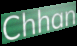
Chhan